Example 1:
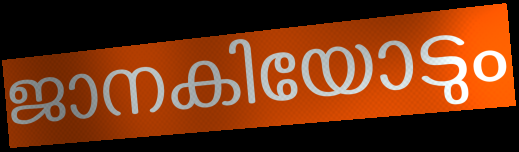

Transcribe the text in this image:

ജാനകിയോടും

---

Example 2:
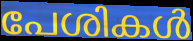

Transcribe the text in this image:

പേശികൾ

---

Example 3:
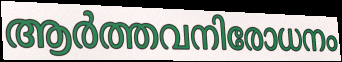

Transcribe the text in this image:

ആർത്തവനിരോധനം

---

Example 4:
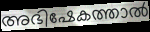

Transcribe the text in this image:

അഭിഷേകത്താൽ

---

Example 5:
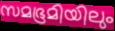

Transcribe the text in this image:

സമഭൂമിയിലും